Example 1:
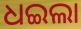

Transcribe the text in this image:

ଧଇଲା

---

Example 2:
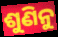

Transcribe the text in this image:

ଶୁଣିନୁ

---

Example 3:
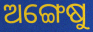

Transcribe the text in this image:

ଅଙ୍ଗେଷୁ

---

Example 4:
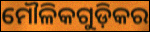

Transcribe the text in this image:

ମୌଳିକଗୁଡ଼ିକର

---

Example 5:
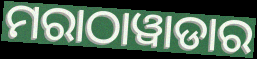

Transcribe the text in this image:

ମରାଠାୱାଡାର